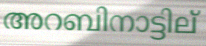
അറബിനാട്ടില്